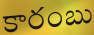
కారంబు